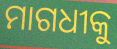
ମାଗଧୀକୁ